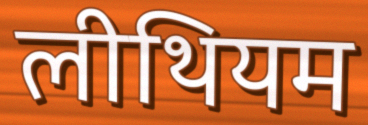
लीथियम